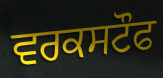
ਵਰਕਸਟੌਫ